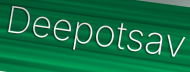
Deepotsav